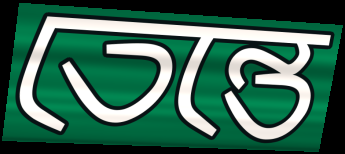
তেন্তে